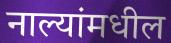
नाल्यांमधील